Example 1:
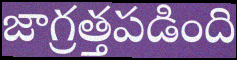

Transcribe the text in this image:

జాగ్రత్తపడింది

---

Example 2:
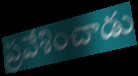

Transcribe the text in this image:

ప్రవేశించాడు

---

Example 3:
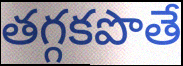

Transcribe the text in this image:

తగ్గకపొతే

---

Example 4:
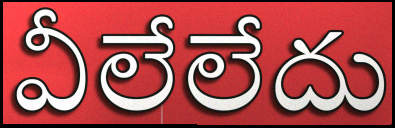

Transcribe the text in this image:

వీలేలేదు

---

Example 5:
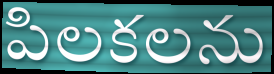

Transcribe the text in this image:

పిలకలను